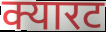
क्यारट